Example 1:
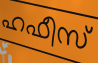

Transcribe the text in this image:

ഹഫീസ്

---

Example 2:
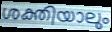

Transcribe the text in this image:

ശക്തിയാലും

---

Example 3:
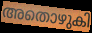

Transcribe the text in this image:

അതൊഴുകി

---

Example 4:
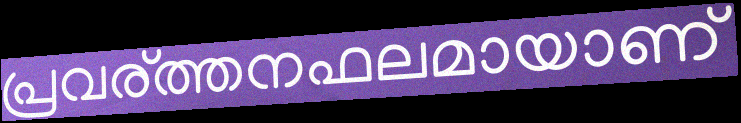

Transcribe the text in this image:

പ്രവര്ത്തനഫലമായാണ്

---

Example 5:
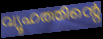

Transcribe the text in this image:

വ്യൂഹത്തിന്റെ